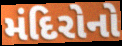
મંદિરોનો